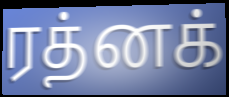
ரத்னக்